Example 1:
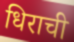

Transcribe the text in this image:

धिराची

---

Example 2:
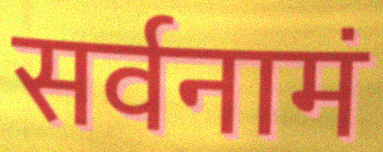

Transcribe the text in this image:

सर्वनामं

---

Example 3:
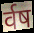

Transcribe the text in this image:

र्वष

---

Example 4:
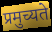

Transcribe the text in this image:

प्रमुच्यते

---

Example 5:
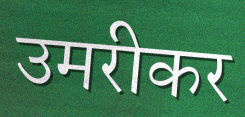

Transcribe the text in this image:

उमरीकर